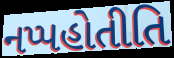
નપ્પહોતીતિ